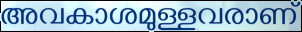
അവകാശമുള്ളവരാണ്